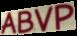
ABVP